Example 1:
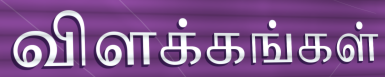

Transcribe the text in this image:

விளக்கங்கள்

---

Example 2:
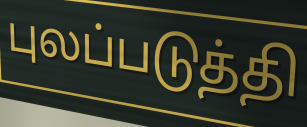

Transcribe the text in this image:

புலப்படுத்தி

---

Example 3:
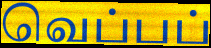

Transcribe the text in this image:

வெப்பப்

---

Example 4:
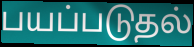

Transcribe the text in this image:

பயப்படுதல்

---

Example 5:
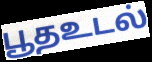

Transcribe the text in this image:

பூதஉடல்